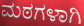
ಮಠಗಳಾಗಿ